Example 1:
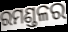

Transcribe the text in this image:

ରମଣ୍ଡଳର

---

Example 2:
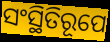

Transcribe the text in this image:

ସଂସ୍ଥିତିରୂପେ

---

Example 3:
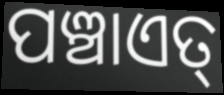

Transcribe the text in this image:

ପଞ୍ଚାଏତ୍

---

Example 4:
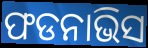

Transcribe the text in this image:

ଫଡନାଭିସ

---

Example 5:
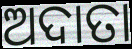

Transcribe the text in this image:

ଅଦାତା